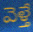
వెళ్తే